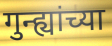
गुन्ह्यांच्या